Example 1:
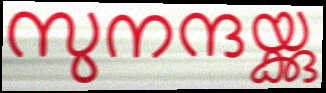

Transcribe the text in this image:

സുനന്ദയ്ക്കു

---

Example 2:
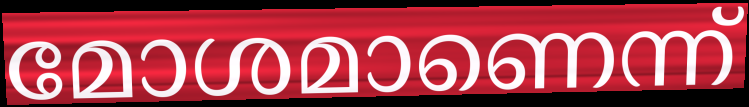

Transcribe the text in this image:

മോശമാണെന്ന്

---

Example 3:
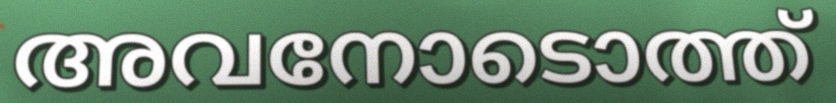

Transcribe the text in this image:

അവനോടൊത്ത്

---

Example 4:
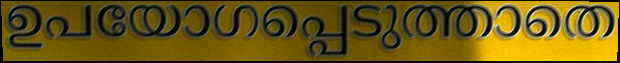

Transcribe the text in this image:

ഉപയോഗപ്പെടുത്താതെ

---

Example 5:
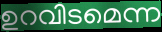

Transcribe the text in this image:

ഉറവിടമെന്ന